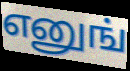
எனுங்